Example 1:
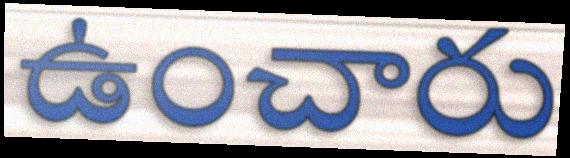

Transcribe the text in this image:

ఉంచారు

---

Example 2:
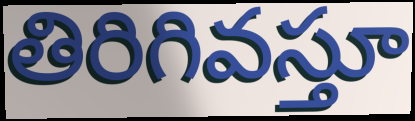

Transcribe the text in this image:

తిరిగివస్తూ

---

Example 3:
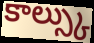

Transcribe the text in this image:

కాల్స్కు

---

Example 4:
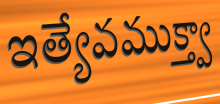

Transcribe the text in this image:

ఇత్యేవముక్త్వా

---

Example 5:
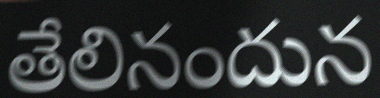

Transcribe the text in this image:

తేలినందున